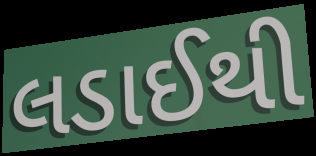
લડાઈથી